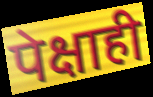
पेक्षाही